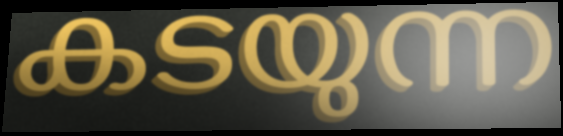
കടയുന്ന